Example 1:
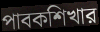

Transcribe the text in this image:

পাবকশিখার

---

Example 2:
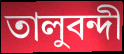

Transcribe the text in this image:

তালুবন্দী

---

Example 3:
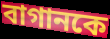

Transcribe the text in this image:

বাগানকে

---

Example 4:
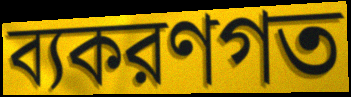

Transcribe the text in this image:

ব্যকরণগত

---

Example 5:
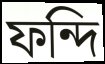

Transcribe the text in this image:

ফন্দি